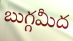
బుగ్గమీద